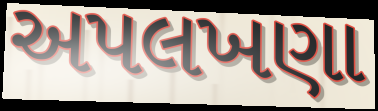
અપલખણા